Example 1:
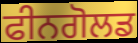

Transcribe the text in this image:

ਫੀਨਗੋਲਡ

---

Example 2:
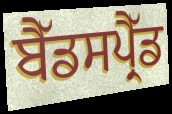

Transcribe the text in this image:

ਬੈੱਡਸਪ੍ਰੈੱਡ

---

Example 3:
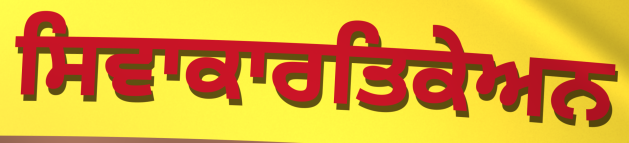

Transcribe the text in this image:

ਸਿਵਾਕਾਰਤਿਕੇਅਨ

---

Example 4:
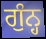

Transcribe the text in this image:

ਗੁੰਨ੍ਹ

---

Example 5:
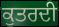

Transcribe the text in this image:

ਕੁਤਰਦੀ